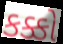
કક્કો